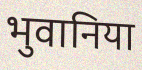
भुवानिया